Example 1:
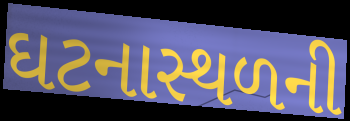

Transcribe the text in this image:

ઘટનાસ્થળની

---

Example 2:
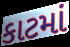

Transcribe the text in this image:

કાટમાં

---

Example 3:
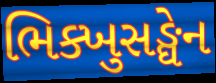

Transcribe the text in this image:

ભિક્ખુસઙ્ઘેન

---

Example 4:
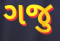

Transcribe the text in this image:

ગજુ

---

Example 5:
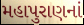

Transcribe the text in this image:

મહાપુરાણનાં